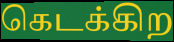
கெடக்கிற